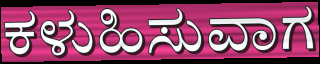
ಕಳುಹಿಸುವಾಗ